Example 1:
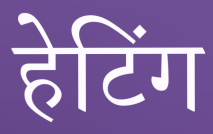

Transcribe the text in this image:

हेटिंग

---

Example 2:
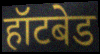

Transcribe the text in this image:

हॉटबेड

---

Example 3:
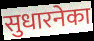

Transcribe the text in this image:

सुधारनेका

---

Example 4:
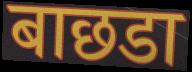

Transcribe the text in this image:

बाछडा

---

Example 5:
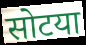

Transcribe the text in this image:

सोटया